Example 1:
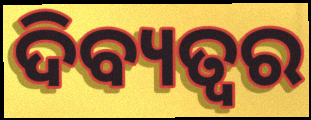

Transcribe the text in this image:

ଦିବ୍ୟତ୍ବର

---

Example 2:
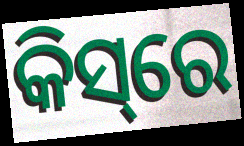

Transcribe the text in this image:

କିସ୍‌ରେ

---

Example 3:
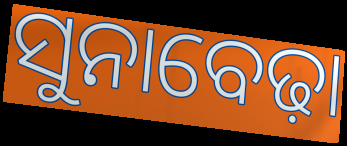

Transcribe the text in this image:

ସୁନାବେଢ଼ା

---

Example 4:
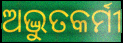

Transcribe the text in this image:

ଅଦ୍ଭୁତକର୍ମୀ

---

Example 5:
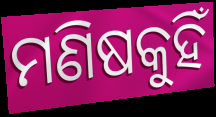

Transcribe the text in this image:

ମଣିଷକୁହିଁ